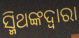
ସ୍ମିଥଙ୍କଦ୍ୱାରା